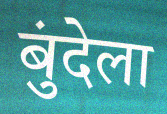
बुंदेला